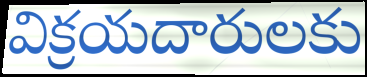
విక్రయదారులకు